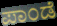
ಪಾಂಡೆ